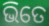
ଭିତେ